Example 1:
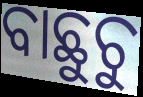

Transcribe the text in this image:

ବାଛୁଚୁ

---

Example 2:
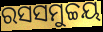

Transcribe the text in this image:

ରସସମୁଚ୍ଚୟ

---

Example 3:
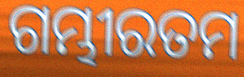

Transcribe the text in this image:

ଗମ୍ଭୀରତମ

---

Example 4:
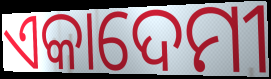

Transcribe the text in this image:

ଏକାଦେମୀ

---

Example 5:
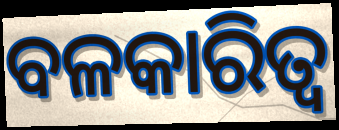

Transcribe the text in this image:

ବଳକାରିତ୍ୱ